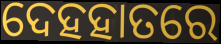
ଦେହହାତରେ